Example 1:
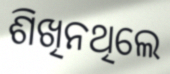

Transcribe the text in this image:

ଶିଖିନଥିଲେ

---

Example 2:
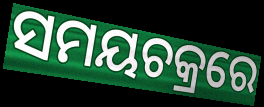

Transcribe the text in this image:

ସମୟଚକ୍ରରେ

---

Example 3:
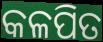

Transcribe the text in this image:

କଳପିତ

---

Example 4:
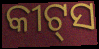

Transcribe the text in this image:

କୀଟ୍‌ସ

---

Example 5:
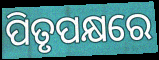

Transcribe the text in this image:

ପିତୃପକ୍ଷରେ